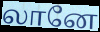
லானே